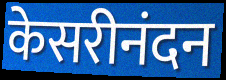
केसरीनंदन